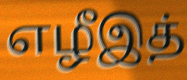
எழீஇத்